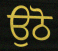
ਉਠੋ